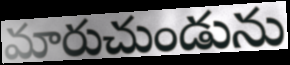
మారుచుండును